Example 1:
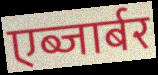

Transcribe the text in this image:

एब्जार्बर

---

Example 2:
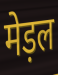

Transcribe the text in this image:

मेड़ल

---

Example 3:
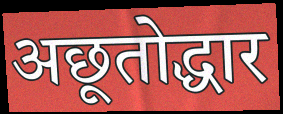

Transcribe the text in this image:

अछूतोद्धार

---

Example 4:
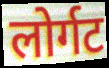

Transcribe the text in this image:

लोर्गट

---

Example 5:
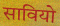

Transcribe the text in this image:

सावियो